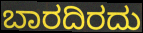
ಬಾರದಿರದು